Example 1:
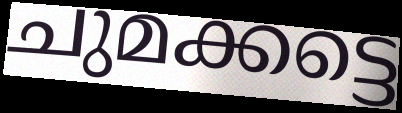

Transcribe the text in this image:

ചുമക്കട്ടെ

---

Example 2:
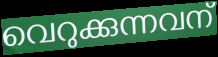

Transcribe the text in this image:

വെറുക്കുന്നവന്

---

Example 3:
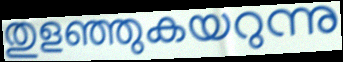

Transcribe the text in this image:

തുളഞ്ഞുകയറുന്നു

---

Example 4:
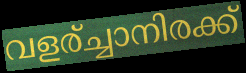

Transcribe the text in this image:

വളര്ച്ചാനിരക്ക്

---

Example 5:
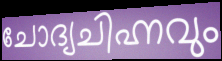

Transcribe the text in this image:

ചോദ്യചിഹ്നവും